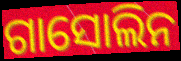
ଗାସୋଲିନ